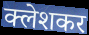
क्लेशकर